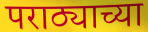
पराठ्याच्या